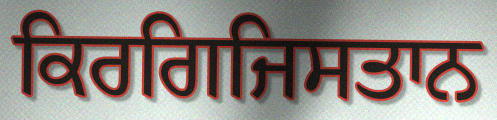
ਕਿਰਗਿਜਿਸਤਾਨ